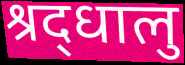
श्रद्धालु